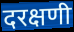
दरक्षणी